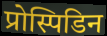
प्रोस्पिडिन